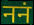
ननं